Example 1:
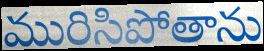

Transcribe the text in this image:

మురిసిపోతాను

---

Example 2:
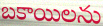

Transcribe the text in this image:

బకాయిలను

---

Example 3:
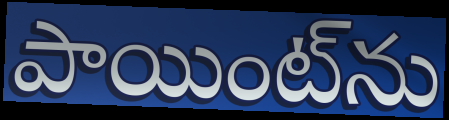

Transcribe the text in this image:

పాయింట్‌ను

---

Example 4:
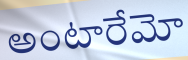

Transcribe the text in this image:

అంటారేమో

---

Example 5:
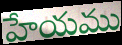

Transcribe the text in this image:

హేయము